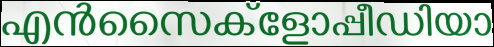
എൻസൈക്ളോപ്പീഡിയാ